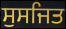
ਸੁਸਜਿਤ